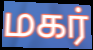
மகர்